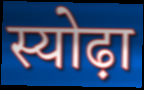
स्योढ़ा